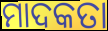
ମାଦକତା